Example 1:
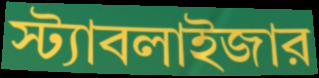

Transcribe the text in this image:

স্ট্যাবলাইজার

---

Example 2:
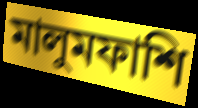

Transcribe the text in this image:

মালুমফাশি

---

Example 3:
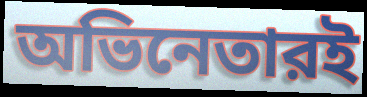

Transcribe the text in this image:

অভিনেতারই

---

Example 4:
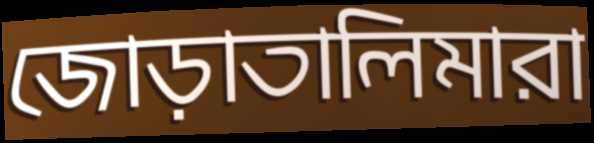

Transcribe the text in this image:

জোড়াতালিমারা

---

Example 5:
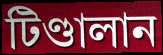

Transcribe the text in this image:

টিণ্ডালান